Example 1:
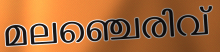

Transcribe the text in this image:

മലഞ്ചെരിവ്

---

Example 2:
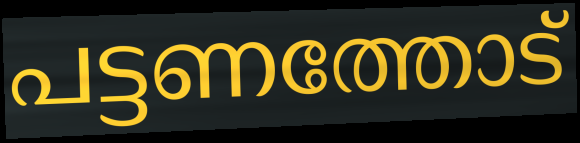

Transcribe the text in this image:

പട്ടണത്തോട്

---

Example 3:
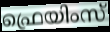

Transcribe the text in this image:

ഫ്രെയിംസ്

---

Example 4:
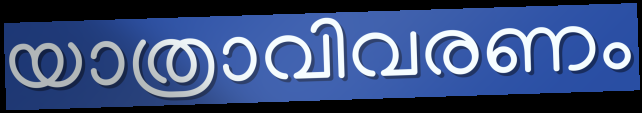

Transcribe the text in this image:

യാത്രാവിവരണം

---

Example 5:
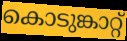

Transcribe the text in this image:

കൊടുങ്കാറ്റ്